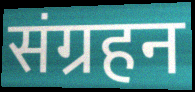
संग्रहन